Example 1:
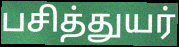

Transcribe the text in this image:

பசித்துயர்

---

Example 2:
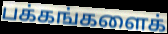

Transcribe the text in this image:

பக்கங்களைக்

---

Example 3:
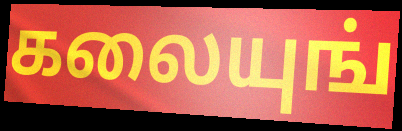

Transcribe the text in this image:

கலையுங்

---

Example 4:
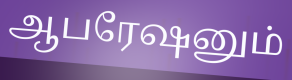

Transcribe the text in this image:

ஆபரேஷனும்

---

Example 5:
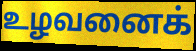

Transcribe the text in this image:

உழவனைக்